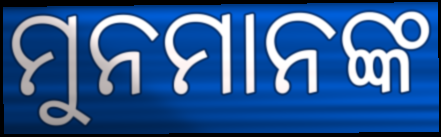
ମୁନମାନଙ୍କ